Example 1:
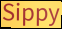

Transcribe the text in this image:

Sippy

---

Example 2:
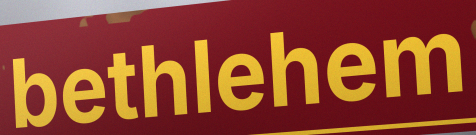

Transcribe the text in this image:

bethlehem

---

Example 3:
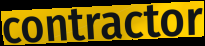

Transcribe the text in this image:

contractor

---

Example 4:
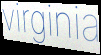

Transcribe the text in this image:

virginia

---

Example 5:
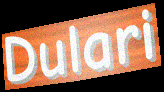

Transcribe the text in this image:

Dulari